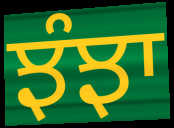
ਝੰਝਾ